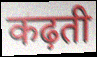
कढ़ती